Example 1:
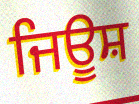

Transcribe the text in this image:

ਜਿਊਸ਼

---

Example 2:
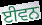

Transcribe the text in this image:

ਈਵਨ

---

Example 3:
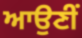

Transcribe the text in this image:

ਆਉਣੀੰ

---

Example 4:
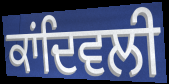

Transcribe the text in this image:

ਕਾਂਦਿਵਲੀ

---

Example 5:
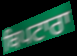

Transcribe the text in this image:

ਥਿਪਟਾਰਾ